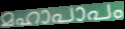
മഹാപാപം